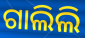
ଗାଲିଲି